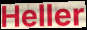
Heller